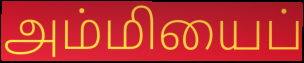
அம்மியைப்